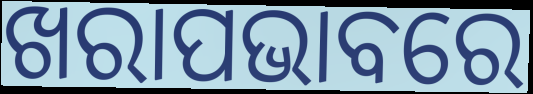
ଖରାପଭାବରେ